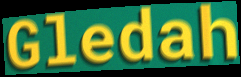
Gledah